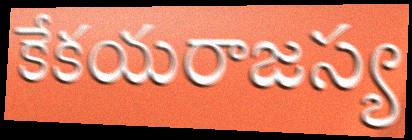
కేకయరాజస్య